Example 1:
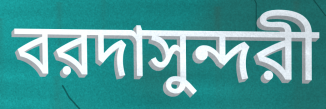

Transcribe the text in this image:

বরদাসুন্দরী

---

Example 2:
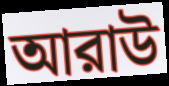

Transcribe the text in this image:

আরাউ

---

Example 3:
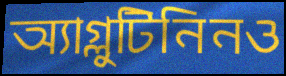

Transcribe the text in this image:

অ্যাগ্লুটিনিনও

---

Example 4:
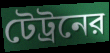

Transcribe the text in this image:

টেট্রনের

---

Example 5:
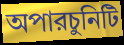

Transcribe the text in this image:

অপারচুনিটি